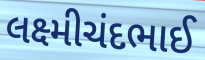
લક્ષ્મીચંદભાઈ